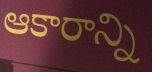
ఆకారాన్ని